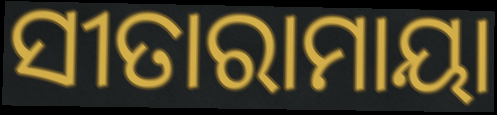
ସୀତାରାମାୟା